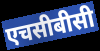
एचसीबीसी